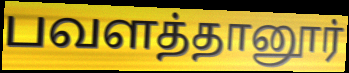
பவளத்தானூர்